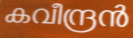
കവീന്ദ്രൻ